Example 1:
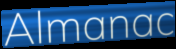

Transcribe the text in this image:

Almanac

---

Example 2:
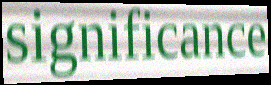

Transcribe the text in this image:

significance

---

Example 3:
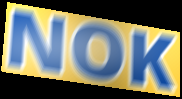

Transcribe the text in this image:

NOK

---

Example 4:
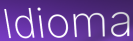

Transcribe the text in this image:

Idioma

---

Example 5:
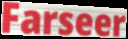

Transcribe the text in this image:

Farseer